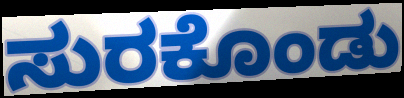
ಸುರಕೊಂಡು